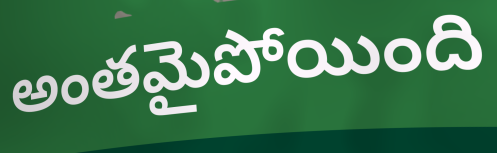
అంతమైపోయింది